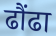
ढौंढा